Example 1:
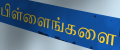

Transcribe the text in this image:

பிள்ளைங்களை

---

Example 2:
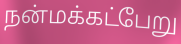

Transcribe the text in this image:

நன்மக்கட்பேறு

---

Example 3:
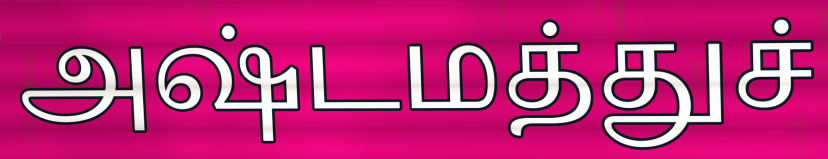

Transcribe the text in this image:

அஷ்டமத்துச்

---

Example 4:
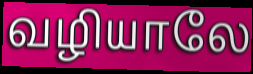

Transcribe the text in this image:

வழியாலே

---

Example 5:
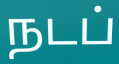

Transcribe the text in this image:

நடப்